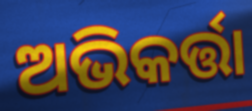
ଅଭିକର୍ତ୍ତା